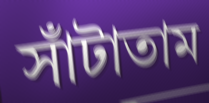
সাঁটাতাম